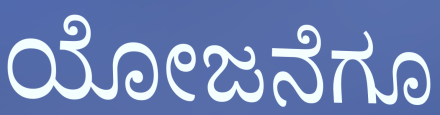
ಯೋಜನೆಗೂ